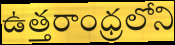
ఉత్తరాంధ్రలోని